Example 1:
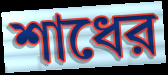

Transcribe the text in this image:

শাধের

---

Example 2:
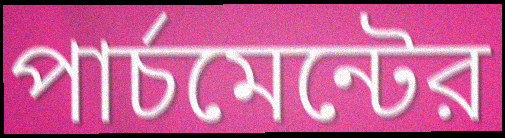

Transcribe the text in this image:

পার্চমেন্টের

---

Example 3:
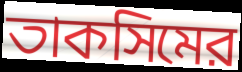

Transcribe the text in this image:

তাকসিমের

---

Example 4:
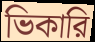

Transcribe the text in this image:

ভিকারি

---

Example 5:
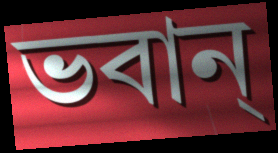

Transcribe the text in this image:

ভবান্